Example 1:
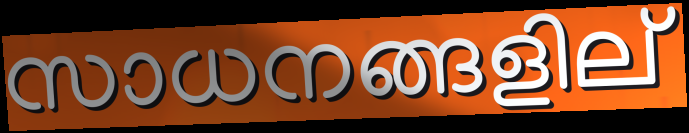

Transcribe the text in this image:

സാധനങ്ങളില്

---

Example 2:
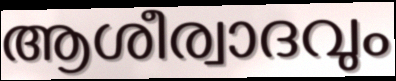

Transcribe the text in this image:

ആശീര്വാദവും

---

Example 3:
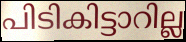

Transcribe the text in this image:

പിടികിട്ടാറില്ല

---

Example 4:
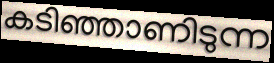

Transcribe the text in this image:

കടിഞ്ഞാണിടുന്ന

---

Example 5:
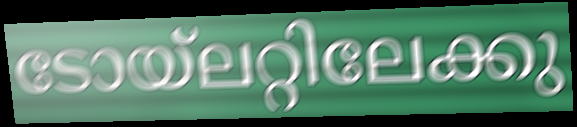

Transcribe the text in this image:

ടോയ്ലറ്റിലേക്കു